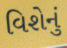
વિશેનું